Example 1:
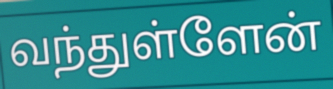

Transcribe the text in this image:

வந்துள்ளேன்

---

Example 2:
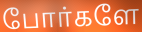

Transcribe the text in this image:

போர்களே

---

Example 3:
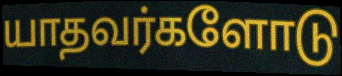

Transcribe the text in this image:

யாதவர்களோடு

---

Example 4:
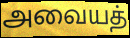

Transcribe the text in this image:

அவையத்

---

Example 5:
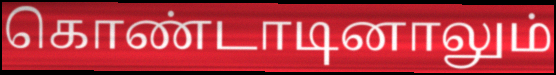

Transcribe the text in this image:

கொண்டாடினாலும்